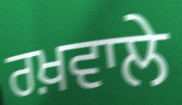
ਰਖ਼ਵਾਲੇ